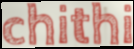
chithi